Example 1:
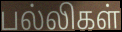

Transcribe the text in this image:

பல்லிகள்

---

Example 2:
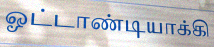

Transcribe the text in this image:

ஓட்டாண்டியாக்கி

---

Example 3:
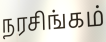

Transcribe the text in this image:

நரசிங்கம்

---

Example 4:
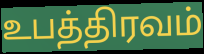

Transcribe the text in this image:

உபத்திரவம்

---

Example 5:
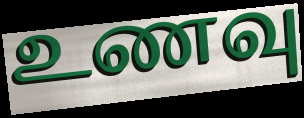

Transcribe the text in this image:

உணவு